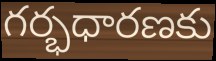
గర్భధారణకు